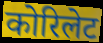
कोरिलेट